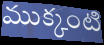
ముక్కంటి